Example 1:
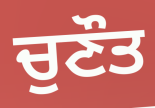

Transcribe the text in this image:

ਚੁਣੌਤ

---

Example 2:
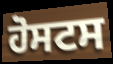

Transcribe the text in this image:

ਹੋਸਟਸ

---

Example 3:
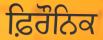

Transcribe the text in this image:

ਫ਼ਿਰੌਨਿਕ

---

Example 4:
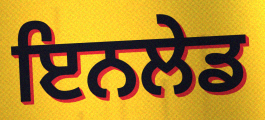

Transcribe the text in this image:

ਇਨਲੇਡ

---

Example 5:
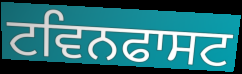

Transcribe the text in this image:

ਟਵਿਨਫਾਸਟ